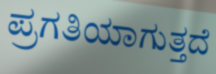
ಪ್ರಗತಿಯಾಗುತ್ತದೆ